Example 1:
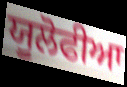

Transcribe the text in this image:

ਯੂਲੋਫੀਆ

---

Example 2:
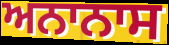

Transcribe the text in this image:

ਅਨਾਨਾਸ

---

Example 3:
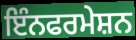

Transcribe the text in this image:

ਇੰਨਫਰਮੇਸ਼ਨ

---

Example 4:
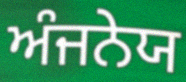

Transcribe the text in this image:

ਅੰਜਨੇਯ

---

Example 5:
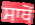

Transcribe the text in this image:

ਸਾਥੋਂ